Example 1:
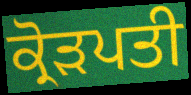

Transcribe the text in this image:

ਕ੍ਰੋੜਪਤੀ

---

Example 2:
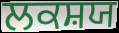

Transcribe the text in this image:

ਲਕਸ਼ਯ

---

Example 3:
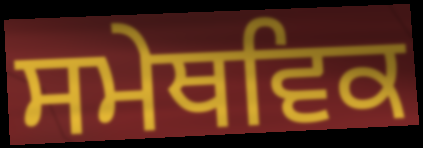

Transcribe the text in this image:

ਸਮੇਥਵਿਕ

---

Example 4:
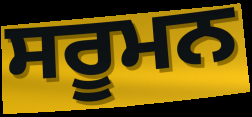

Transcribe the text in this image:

ਸਰੂਮਨ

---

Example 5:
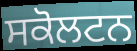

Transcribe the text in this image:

ਸਕੋਲਟਨ